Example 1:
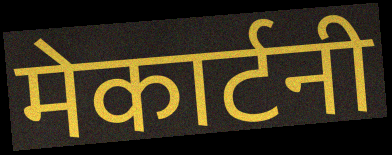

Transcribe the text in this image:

मेकार्टनी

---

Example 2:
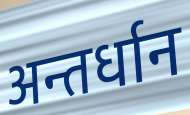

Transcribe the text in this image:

अन्तर्धान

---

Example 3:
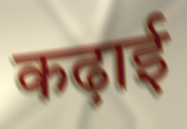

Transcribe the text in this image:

कढ़ाई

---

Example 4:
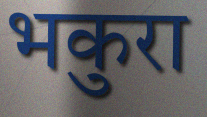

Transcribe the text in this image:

भकुरा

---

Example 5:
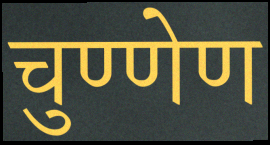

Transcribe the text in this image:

चुण्णेण